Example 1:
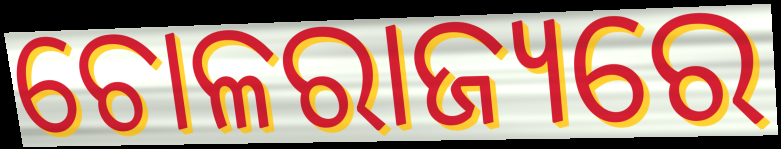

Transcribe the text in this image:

ଚୋଳରାଜ୍ୟରେ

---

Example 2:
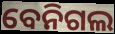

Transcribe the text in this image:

ବେନିଗଲ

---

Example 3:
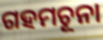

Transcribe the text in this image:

ଗହମଚୂନା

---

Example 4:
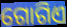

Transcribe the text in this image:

ଗୋଗିଏ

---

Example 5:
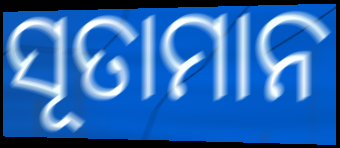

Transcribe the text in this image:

ସୂତାମାନ